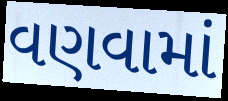
વણવામાં